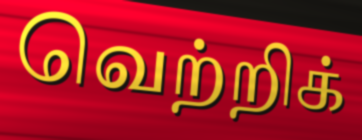
வெற்றிக்